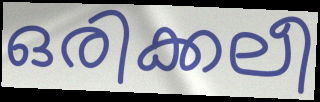
ഒരിക്കലീ